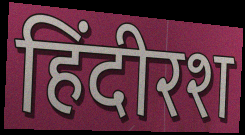
हिंदीरश